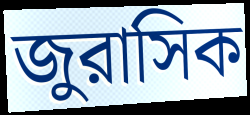
জুরাসিক